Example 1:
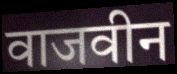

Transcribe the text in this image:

वाजवीन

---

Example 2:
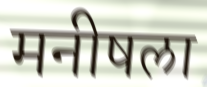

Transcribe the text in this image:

मनीषला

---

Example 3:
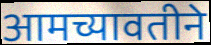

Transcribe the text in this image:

आमच्यावतीने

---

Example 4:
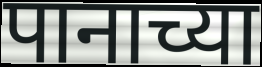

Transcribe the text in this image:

पानाच्या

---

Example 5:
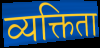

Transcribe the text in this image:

व्यक्तिता